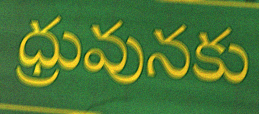
ధ్రువునకు